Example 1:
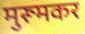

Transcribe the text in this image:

मुरूमकर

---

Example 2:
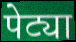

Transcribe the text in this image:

पेट्या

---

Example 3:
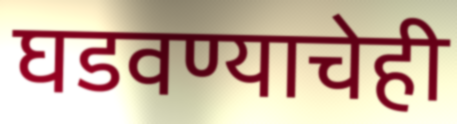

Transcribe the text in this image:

घडवण्याचेही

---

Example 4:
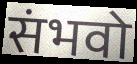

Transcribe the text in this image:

संभवो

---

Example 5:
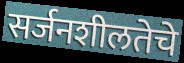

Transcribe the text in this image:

सर्जनशीलतेचे